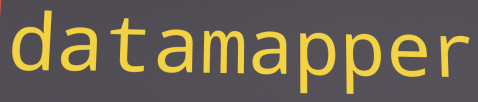
datamapper